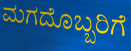
ಮಗದೊಬ್ಬರಿಗೆ